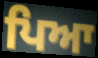
ਪਿਆ